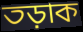
তড়াক